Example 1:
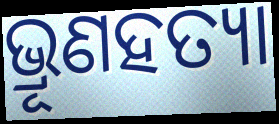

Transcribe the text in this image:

ଭ୍ରୂଣହତ୍ୟା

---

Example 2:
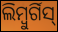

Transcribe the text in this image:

ଲିମ୍ବୁର୍ଗିସ୍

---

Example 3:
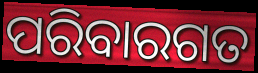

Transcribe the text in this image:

ପରିବାରଗତ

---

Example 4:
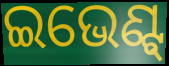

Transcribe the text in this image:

ଇଭେଣ୍ଟ୍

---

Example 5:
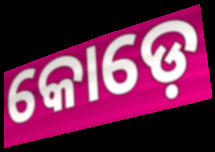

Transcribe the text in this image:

କୋଡ଼େ